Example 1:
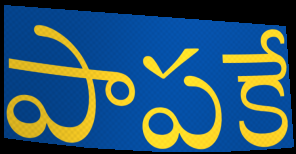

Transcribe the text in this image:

పాపకే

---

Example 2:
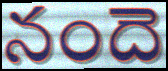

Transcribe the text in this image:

నందె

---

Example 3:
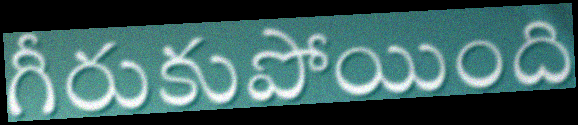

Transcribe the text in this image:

గీరుకుపోయింది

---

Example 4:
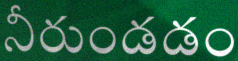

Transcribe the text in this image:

నీరుండడం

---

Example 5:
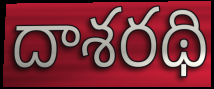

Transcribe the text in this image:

దాశరథి